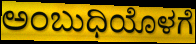
ಅಂಬುಧಿಯೊಳಗೆ